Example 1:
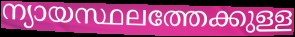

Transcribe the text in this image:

ന്യായസ്ഥലത്തേക്കുള്ള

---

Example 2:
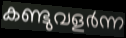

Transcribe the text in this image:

കണ്ടുവളർന്ന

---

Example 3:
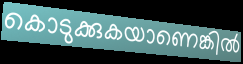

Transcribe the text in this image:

കൊടുക്കുകയാണെങ്കിൽ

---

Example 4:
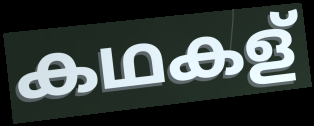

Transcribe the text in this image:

കഥകള്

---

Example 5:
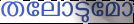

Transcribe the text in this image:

തലോടുമോ